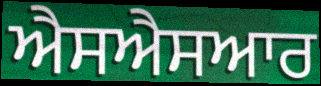
ਐਸਐਸਆਰ